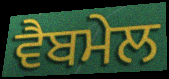
ਵੈਬਮੇਲ